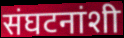
संघटनांशी